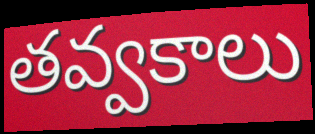
తవ్వకాలు